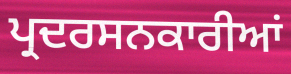
ਪ੍ਰਦਰਸਨਕਾਰੀਆਂ